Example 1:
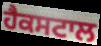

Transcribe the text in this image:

ਹੈਕਸਟਾਲ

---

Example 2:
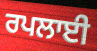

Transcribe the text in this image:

ਰਪਲਾਈ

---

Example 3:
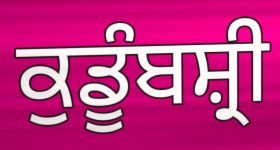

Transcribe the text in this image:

ਕੁਡੂੰਬਸ਼੍ਰੀ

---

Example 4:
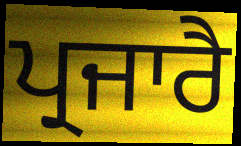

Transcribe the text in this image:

ਪ੍ਰਜਾਰੈ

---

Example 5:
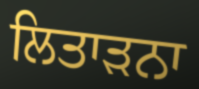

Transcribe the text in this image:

ਲਿਤਾੜਨਾ